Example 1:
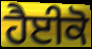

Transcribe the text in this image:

ਹੈਈਕੋ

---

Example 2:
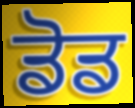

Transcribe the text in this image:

ਡੋਡ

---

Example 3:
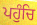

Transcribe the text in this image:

ਪਹੁੰਚਿ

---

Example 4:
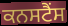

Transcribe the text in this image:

ਕਨਸਟੈਂਸ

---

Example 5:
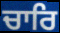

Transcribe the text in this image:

ਚਾਰਿ